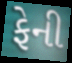
ફેની